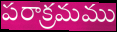
పరాక్రమము